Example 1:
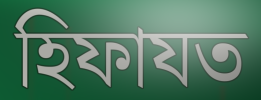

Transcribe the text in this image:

হিফাযত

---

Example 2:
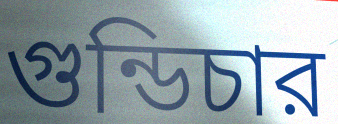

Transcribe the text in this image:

গুন্ডিচার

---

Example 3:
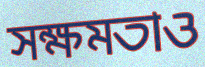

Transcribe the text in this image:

সক্ষমতাও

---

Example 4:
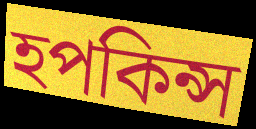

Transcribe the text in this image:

হপকিন্স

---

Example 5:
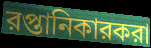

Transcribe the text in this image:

রপ্তানিকারকরা